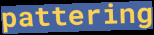
pattering